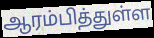
ஆரம்பித்துள்ள